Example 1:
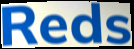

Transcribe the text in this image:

Reds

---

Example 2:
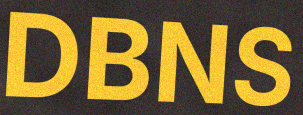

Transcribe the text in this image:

DBNS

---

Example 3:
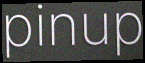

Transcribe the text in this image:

pinup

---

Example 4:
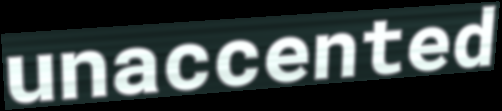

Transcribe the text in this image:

unaccented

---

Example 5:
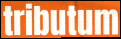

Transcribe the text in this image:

tributum